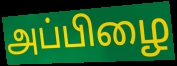
அப்பிழை